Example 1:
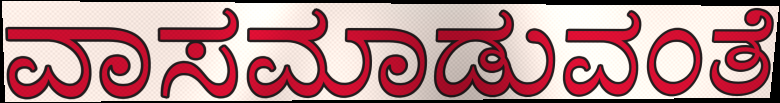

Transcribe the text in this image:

ವಾಸಮಾಡುವಂತೆ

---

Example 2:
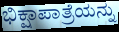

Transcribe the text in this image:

ಭಿಕ್ಷಾಪಾತ್ರೆಯನ್ನು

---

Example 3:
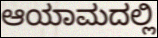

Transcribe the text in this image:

ಆಯಾಮದಲ್ಲಿ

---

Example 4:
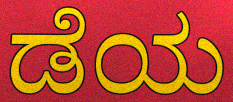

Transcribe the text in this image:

ಡೆಯ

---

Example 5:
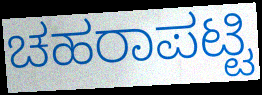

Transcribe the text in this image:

ಚಹರಾಪಟ್ಟಿ